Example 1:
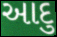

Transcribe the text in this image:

આદુ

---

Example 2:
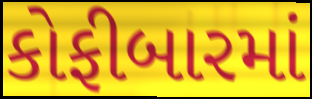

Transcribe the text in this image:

કોફીબારમાં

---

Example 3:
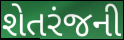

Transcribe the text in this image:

શેતરંજની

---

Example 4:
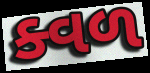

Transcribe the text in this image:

ક્વળ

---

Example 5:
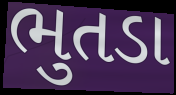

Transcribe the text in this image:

ભુતડા